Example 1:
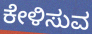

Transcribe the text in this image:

ಕೇಳಿಸುವ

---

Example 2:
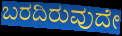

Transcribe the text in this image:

ಬರದಿರುವುದೇ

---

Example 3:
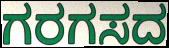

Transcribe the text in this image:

ಗರಗಸದ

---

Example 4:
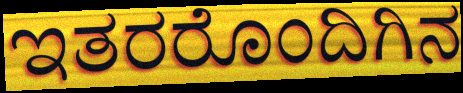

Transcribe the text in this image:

ಇತರರೊಂದಿಗಿನ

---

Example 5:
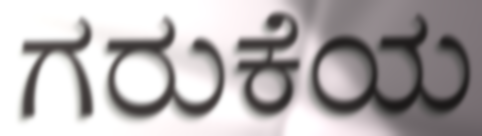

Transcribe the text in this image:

ಗರುಕೆಯ